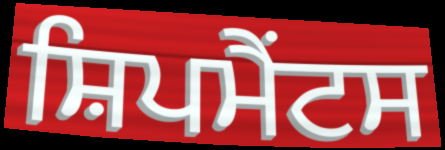
ਸ਼ਿਪਮੈਂਟਸ